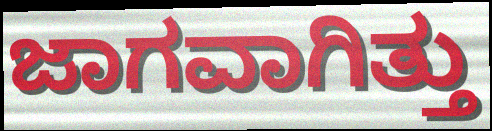
ಜಾಗವಾಗಿತ್ತು